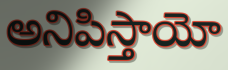
అనిపిస్తాయో